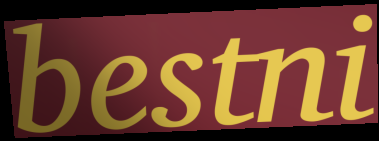
bestni